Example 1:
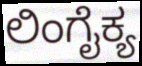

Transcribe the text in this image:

ಲಿಂಗೈಕ್ಯ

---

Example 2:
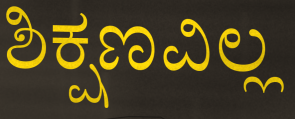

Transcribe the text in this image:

ಶಿಕ್ಷಣವಿಲ್ಲ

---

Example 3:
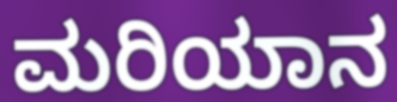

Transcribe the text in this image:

ಮರಿಯಾನ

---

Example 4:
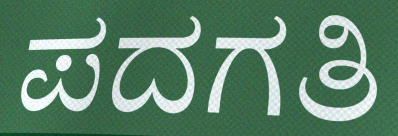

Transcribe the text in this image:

ಪದಗತಿ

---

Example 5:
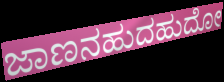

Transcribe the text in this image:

ಜಾಣನಹುದಹುದೋ